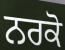
ਨਰਕੋ